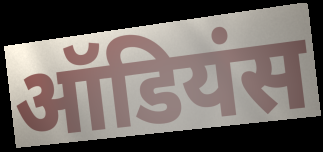
ऑडियंस